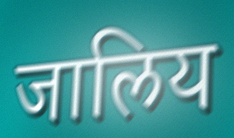
जालिय